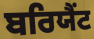
ਬਰਿਯੈਂਟ